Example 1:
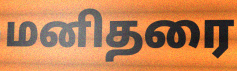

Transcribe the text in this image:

மனிதரை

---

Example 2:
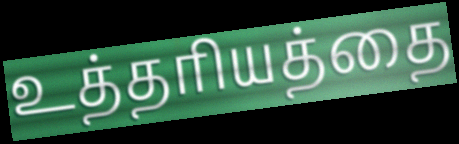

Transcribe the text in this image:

உத்தரியத்தை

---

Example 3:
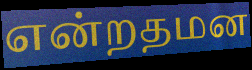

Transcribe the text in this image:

என்றதமன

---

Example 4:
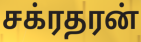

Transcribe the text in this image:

சக்ரதரன்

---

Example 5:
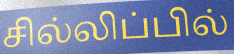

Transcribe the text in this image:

சில்லிப்பில்